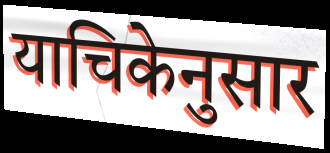
याचिकेनुसार